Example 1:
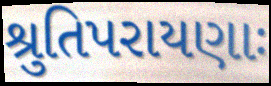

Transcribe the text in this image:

શ્રુતિપરાયણાઃ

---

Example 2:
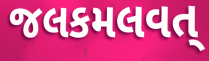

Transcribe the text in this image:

જલકમલવત્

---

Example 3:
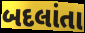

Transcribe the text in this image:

બદલાંતા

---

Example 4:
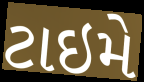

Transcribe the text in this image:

ટાઇમે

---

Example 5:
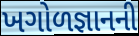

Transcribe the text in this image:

ખગોળજ્ઞાનની